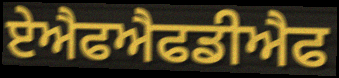
ਏਐਫਐਫਡੀਐਫ